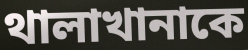
থালাখানাকে